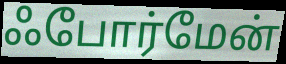
ஃபோர்மேன்